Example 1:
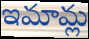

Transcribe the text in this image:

ఇమామ్ల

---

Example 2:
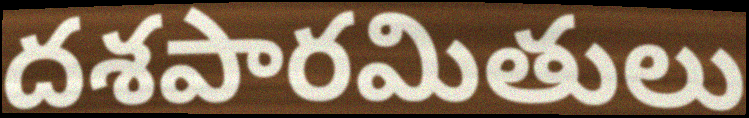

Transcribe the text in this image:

దశపారమితులు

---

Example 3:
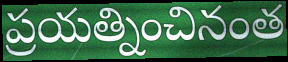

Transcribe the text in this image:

ప్రయత్నించినంత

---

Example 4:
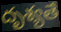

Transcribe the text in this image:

దృశ్యతే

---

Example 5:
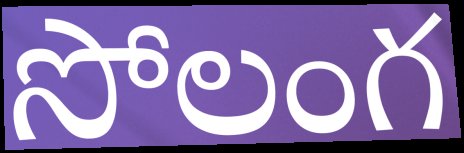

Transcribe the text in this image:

సోలంగ